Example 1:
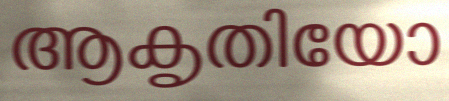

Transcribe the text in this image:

ആകൃതിയോ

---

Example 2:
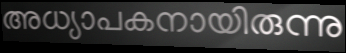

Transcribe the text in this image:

അധ്യാപകനായിരുന്നു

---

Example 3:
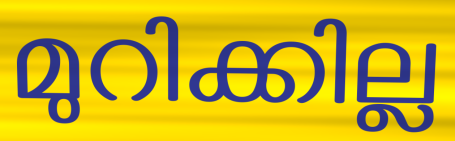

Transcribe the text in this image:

മുറിക്കില്ല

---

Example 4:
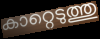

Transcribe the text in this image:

കാറ്റെടുത്തു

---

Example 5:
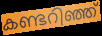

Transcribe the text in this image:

കണ്ടറിഞ്ഞ്